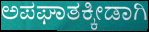
ಅಪಘಾತಕ್ಕೀಡಾಗಿ